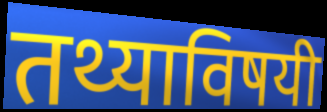
तथ्याविषयी